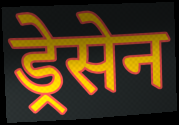
ड्रेसेन